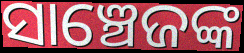
ସାଞ୍ଚେଜଙ୍କ